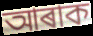
আৰাক